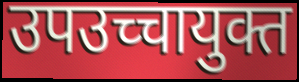
उपउच्चायुक्त